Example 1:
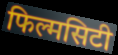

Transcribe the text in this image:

फिल्मसिटी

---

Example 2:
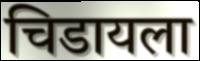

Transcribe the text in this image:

चिडायला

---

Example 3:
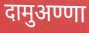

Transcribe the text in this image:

दामुअण्णा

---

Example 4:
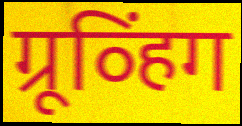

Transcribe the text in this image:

ग्रूव्हिंग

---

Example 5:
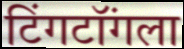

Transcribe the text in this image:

टिंगटॉंगला